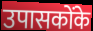
उपासकोंके